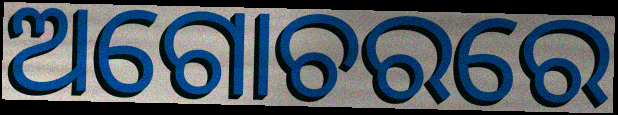
ଅଗୋଚରରେ